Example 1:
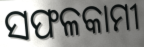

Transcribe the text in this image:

ସଫଳକାମୀ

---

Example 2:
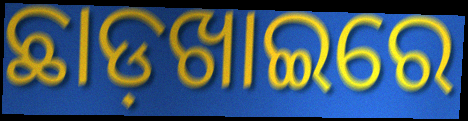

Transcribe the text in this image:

ଛାଡ଼ଖାଇରେ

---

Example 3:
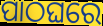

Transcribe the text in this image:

ପାଠଘରେ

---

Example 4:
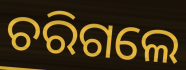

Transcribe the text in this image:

ଚରିଗଲେ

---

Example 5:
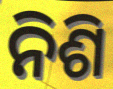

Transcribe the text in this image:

ନିଶି